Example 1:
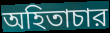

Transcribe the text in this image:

অহিতাচার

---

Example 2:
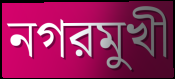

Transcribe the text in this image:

নগরমুখী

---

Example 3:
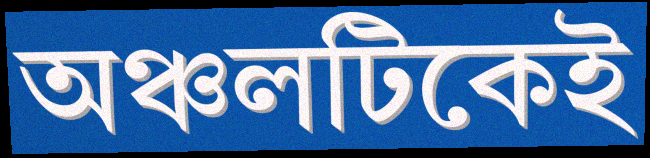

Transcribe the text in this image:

অঞ্চলটিকেই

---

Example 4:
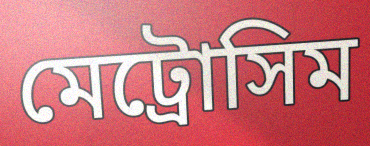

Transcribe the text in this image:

মেট্রোসিম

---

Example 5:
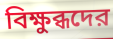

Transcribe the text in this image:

বিক্ষুব্ধদের